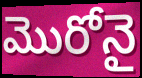
మొరోనై